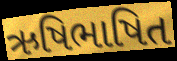
ઋષિભાષિત